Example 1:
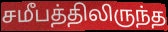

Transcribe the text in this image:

சமீபத்திலிருந்த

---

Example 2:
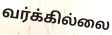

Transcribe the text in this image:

வர்க்கில்லை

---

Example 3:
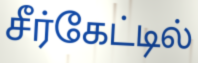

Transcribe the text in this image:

சீர்கேட்டில்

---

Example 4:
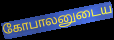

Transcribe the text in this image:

கோபாலனுடைய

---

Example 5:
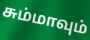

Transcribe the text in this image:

சும்மாவும்